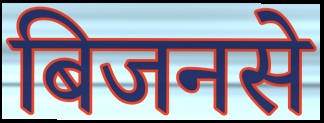
बिजनसे